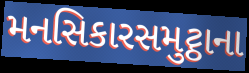
મનસિકારસમુટ્ઠાના